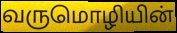
வருமொழியின்